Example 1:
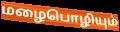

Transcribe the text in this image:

மழைபொழியும்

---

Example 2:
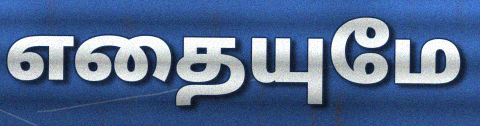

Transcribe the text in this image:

எதையுமே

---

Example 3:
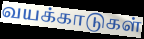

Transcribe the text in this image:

வயக்காடுகள்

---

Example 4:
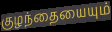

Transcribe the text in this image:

குழந்தையையும்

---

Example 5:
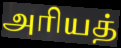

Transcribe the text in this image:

அரியத்